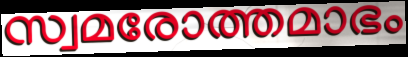
സ്വമരോത്തമാഭം